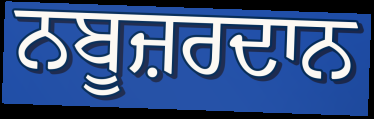
ਨਬੂਜ਼ਰਦਾਨ